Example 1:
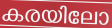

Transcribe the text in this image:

കരയിലോ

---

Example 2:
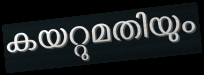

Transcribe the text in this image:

കയറ്റുമതിയും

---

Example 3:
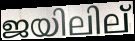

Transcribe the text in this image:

ജയിലില്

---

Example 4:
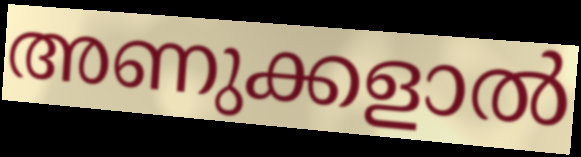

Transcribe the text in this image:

അണുക്കളാൽ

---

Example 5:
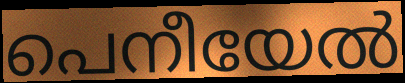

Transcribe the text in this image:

പെനീയേൽ